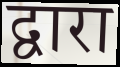
द्वारा